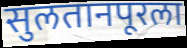
सुलतानपूरला